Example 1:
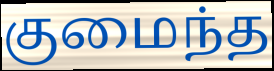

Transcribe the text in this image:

குமைந்த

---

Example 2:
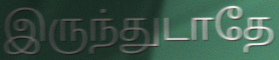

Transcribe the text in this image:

இருந்துடாதே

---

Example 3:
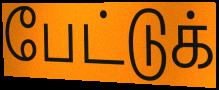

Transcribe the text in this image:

பேட்டுக்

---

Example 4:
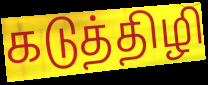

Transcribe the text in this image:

கடுத்திழி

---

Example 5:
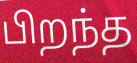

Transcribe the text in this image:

பிறந்த